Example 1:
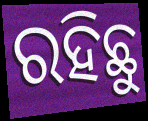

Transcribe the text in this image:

ରହିଛୁ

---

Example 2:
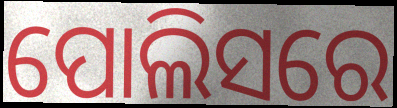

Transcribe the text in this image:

ପୋଲିସରେ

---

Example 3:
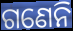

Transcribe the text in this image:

ଗଣେନି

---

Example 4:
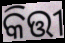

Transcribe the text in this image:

କିତ୍ତୀ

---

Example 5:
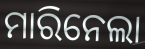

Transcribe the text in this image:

ମାରିନେଲା